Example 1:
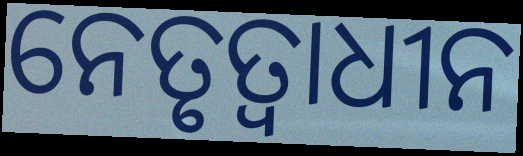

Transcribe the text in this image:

ନେତୃତ୍ୱାଧୀନ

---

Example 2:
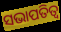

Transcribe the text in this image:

ସଭାପତିତ୍ବ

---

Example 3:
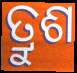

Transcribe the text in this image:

ତ୍ରୁଶ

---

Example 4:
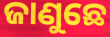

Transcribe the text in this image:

ଜାଣୁଛେ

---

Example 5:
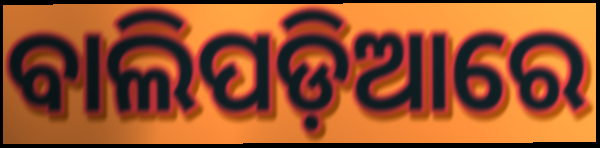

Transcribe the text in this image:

ବାଲିପଡ଼ିଆରେ